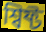
শ্বিফ্ট